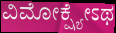
ವಿಮೋಕ್ಷ್ಯೇಽಥ